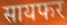
सायफर